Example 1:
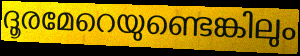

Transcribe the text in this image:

ദൂരമേറെയുണ്ടെങ്കിലും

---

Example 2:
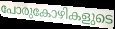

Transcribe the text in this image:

പോരുകോഴികളുടെ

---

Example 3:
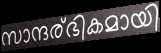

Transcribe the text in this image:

സാന്ദര്ഭികമായി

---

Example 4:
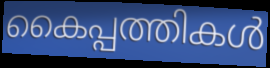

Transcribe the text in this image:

കൈപ്പത്തികൾ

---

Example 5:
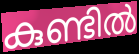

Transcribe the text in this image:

കുണ്ടിൽ